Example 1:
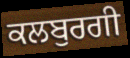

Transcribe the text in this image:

ਕਲਬੁਰਗੀ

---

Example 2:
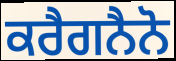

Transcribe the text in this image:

ਕਰੈਗਨੈਨੋ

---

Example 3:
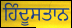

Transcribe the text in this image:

ਹਿੰਦੂਸਤਾਨ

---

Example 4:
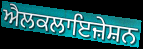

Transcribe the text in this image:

ਐਲਕਲਾਇਜ਼ੇਸ਼ਨ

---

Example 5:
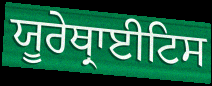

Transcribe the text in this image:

ਯੂਰੇਥ੍ਰਾਈਟਿਸ